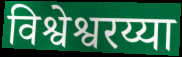
विश्वेश्वरय्या